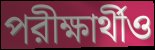
পরীক্ষার্থীও